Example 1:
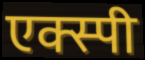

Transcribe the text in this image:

एक्स्पी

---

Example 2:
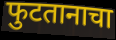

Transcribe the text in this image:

फुटतानाचा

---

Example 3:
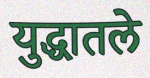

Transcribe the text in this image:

युद्धातले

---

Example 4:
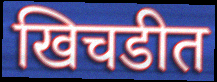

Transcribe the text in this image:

खिचडीत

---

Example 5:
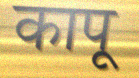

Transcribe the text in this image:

कापू